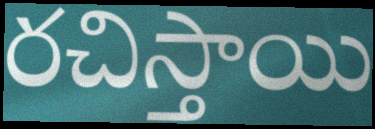
రచిస్తాయి